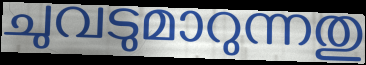
ചുവടുമാറുന്നതു